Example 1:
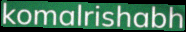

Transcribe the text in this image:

komalrishabh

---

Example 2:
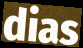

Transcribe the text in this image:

dias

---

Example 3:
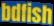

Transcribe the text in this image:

bdfish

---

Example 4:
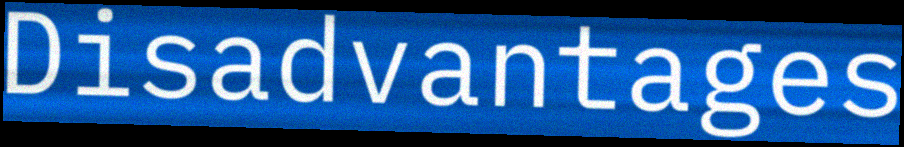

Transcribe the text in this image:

Disadvantages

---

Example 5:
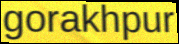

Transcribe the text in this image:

gorakhpur